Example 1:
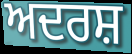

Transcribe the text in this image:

ਅਦਰਸ਼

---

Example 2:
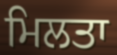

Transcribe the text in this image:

ਮਿਲਤਾ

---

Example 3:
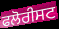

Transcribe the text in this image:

ਫਲੋਰੀਸਟ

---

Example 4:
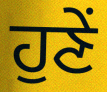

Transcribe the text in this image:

ਹੁਣੇਂ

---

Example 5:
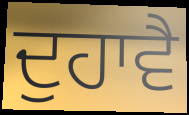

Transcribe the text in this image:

ਦੁਹਾਵੈ